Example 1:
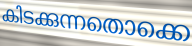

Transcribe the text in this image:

കിടക്കുന്നതൊക്കെ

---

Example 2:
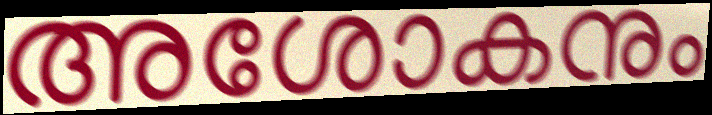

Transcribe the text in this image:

അശോകനും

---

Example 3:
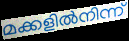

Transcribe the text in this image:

മക്കളിൽനിന്ന്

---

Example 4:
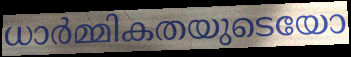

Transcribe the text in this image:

ധാർമ്മികതയുടെയോ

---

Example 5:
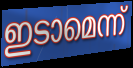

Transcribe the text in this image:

ഇടാമെന്ന്